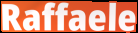
Raffaele